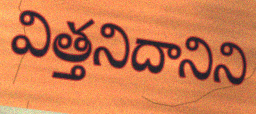
విత్తనిదానిని